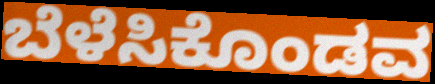
ಬೆಳೆಸಿಕೊಂಡವ